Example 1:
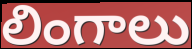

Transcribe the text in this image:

లింగాలు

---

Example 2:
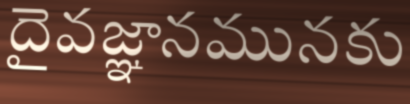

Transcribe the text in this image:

దైవజ్ఞానమునకు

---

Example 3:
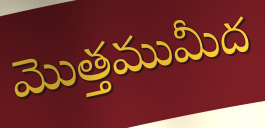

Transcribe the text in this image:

మొత్తముమీద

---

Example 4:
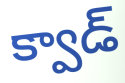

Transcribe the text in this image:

క్వాడ్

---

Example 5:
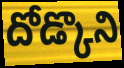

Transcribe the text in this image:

దోడ్కొని